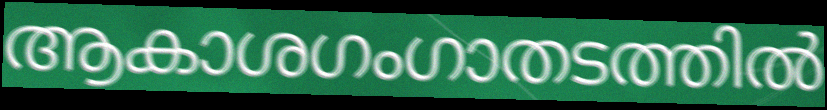
ആകാശഗംഗാതടത്തിൽ